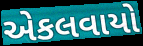
એકલવાયો